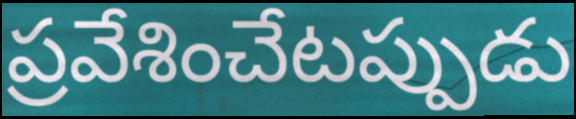
ప్రవేశించేటప్పుడు